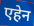
एहेन